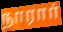
நாரார்